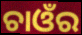
ଚାଓଁର